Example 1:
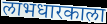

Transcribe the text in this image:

लाभधारकाला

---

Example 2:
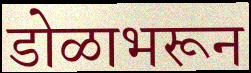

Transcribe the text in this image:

डोळाभरून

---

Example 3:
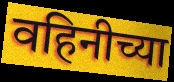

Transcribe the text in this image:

वहिनीच्या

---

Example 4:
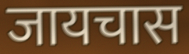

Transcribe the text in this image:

जायचास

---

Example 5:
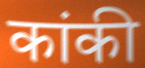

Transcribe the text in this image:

कांकी